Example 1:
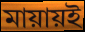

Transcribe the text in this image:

মায়ায়ই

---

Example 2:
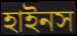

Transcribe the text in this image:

হাইনস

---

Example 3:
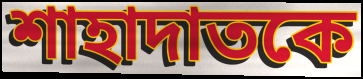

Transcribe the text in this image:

শাহাদাতকে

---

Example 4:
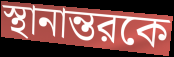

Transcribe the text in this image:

স্থানান্তরকে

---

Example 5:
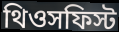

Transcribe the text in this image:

থিওসফিস্ট